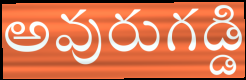
అవురుగడ్డి